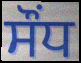
ਸੌਂਧ